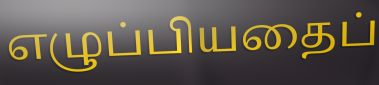
எழுப்பியதைப்